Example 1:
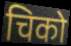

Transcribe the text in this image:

चिको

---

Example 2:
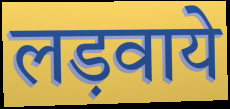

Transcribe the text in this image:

लड़वाये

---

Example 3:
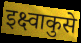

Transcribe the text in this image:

इक्ष्वाकुसे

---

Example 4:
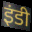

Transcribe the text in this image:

इंडी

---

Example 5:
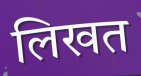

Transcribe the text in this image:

लिखत